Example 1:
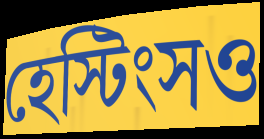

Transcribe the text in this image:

হেস্টিংসও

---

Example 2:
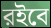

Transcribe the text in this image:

রইবে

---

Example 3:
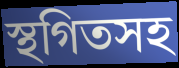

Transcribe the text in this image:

স্থগিতসহ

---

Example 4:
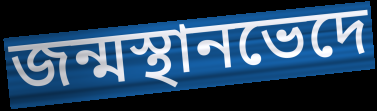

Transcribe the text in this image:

জন্মস্থানভেদে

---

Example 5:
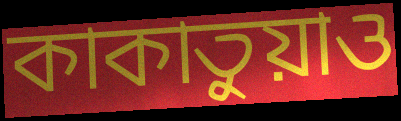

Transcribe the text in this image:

কাকাতুয়াও